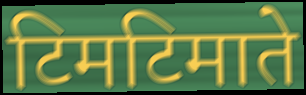
टिमटिमाते